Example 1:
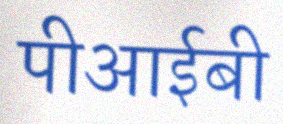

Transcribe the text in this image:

पीआईबी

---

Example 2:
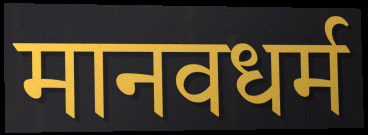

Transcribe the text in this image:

मानवधर्म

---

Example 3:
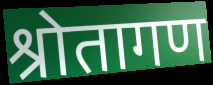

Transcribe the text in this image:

श्रोतागण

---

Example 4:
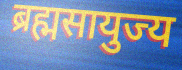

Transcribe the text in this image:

ब्रह्मसायुज्य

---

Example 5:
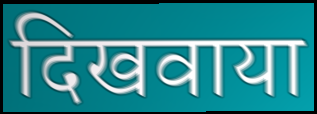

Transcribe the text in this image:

दिखवाया